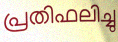
പ്രതിഫലിച്ചു